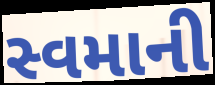
સ્વમાની